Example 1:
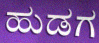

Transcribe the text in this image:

ಹುಡಗ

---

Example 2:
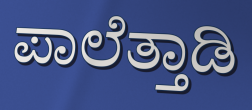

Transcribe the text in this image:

ಪಾಲೆತ್ತಾಡಿ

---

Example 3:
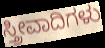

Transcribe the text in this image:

ಸ್ತ್ರೀವಾದಿಗಳು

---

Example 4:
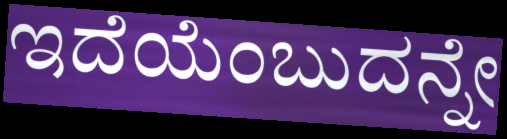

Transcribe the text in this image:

ಇದೆಯೆಂಬುದನ್ನೇ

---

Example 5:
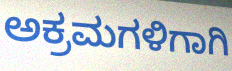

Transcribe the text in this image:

ಅಕ್ರಮಗಳಿಗಾಗಿ